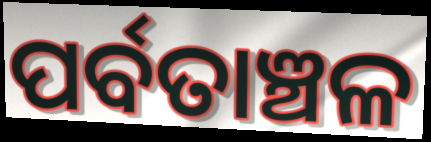
ପର୍ବତାଞ୍ଚଳ